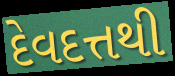
દેવદત્તથી